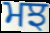
ਮਝ